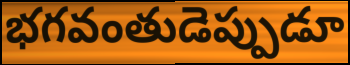
భగవంతుడెప్పుడూ